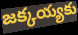
జక్కయ్యకు